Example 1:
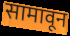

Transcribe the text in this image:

सामावून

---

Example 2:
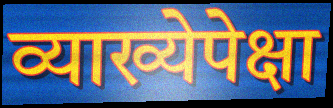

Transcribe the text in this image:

व्याख्येपेक्षा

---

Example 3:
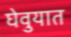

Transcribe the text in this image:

घेवुयात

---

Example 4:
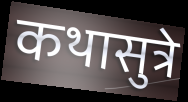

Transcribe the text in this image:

कथासुत्रे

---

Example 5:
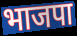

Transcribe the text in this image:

भाजपा